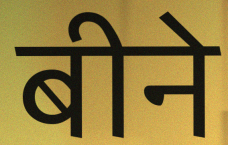
बीने